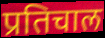
प्रतिचाल